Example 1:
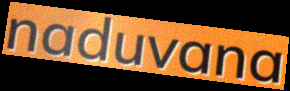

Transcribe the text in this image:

naduvana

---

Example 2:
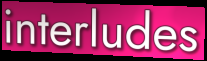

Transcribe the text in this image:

interludes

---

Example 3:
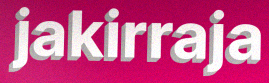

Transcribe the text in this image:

jakirraja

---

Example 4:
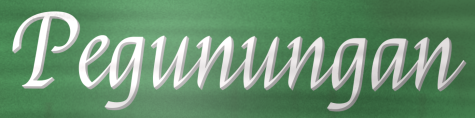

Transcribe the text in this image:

Pegunungan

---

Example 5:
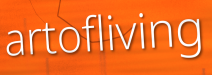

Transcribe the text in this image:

artofliving